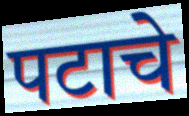
पटाचे